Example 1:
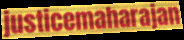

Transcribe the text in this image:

justicemaharajan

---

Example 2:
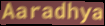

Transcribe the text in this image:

Aaradhya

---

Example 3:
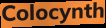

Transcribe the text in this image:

Colocynth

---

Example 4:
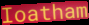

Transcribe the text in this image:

Ioatham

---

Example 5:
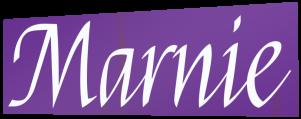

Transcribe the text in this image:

Marnie